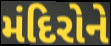
મંદિરોને